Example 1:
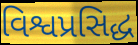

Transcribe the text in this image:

વિશ્વપ્રસિદ્ધ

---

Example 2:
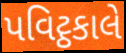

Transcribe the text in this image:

પવિટ્ઠકાલે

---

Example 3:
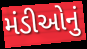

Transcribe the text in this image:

મંડીઓનું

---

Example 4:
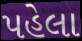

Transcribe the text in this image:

પહેલા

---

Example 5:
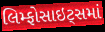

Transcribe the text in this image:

લિમ્ફોસાઇટ્સમાં